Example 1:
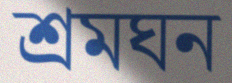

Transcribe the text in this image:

শ্রমঘন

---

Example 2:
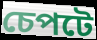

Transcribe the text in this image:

চেপটে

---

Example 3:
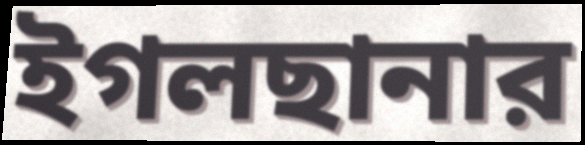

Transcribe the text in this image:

ইগলছানার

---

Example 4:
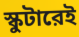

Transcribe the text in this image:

স্কুটারেই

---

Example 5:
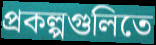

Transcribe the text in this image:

প্রকল্পগুলিতে